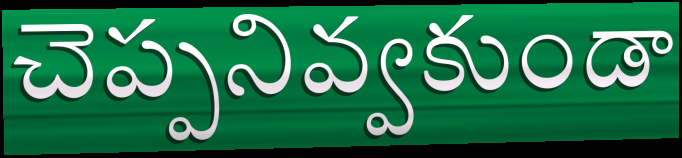
చెప్పనివ్వకుండా